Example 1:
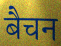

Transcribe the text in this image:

बैचन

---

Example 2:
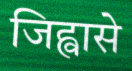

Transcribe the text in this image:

जिह्वासे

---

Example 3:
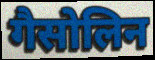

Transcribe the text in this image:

गैसोलिन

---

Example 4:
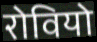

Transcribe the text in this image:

रोवियो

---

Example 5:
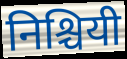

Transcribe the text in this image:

निश्चियी